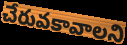
చేరువకావాలని